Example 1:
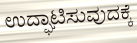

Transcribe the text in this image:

ಉದ್ಘಾಟಿಸುವುದಕ್ಕೆ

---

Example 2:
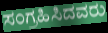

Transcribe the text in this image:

ಸಂಗ್ರಹಿಸಿದವರು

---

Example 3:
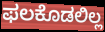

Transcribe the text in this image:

ಫಲಕೊಡಲಿಲ್ಲ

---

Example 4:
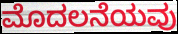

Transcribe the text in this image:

ಮೊದಲನೆಯವು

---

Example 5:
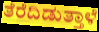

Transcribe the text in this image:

ತೆರೆದಿಡುತ್ತಾಳೆ